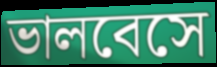
ভালবেসে